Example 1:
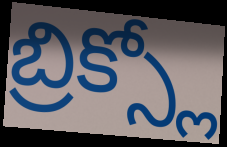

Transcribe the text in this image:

బ్రిక్స్లో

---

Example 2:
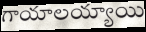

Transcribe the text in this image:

గాయాలయ్యాయి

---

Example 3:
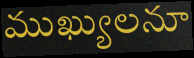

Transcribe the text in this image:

ముఖ్యులనూ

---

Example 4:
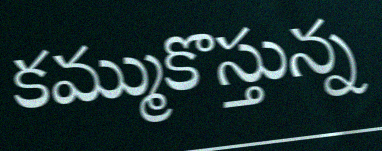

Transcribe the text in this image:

కమ్ముకొస్తున్న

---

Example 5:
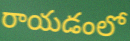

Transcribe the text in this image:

రాయడంలో